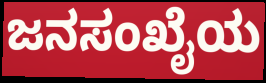
ಜನಸಂಖೈಯ